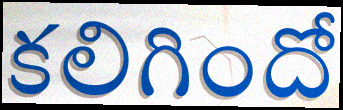
కలిగిందో